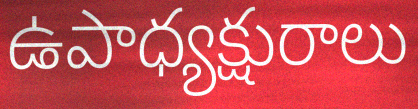
ఉపాధ్యక్షురాలు